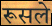
रूसले